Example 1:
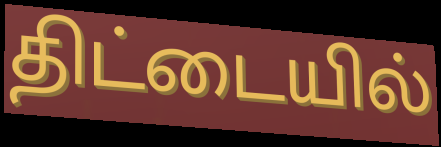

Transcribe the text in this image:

திட்டையில்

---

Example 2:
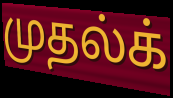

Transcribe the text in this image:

முதல்க்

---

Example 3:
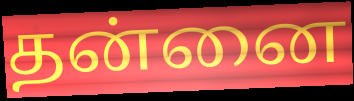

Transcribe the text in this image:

தன்னை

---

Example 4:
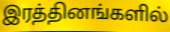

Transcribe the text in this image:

இரத்தினங்களில்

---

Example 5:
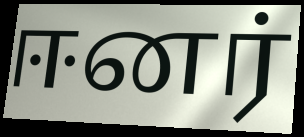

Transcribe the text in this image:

ஈனர்